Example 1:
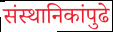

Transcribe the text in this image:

संस्थानिकांपुढे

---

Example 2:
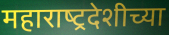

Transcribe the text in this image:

महाराष्ट्रदेशीच्या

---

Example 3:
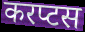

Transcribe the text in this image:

करप्टस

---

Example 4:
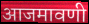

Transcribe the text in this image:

आजमावणी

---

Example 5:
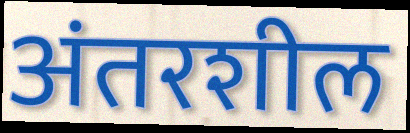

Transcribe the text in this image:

अंतरशील